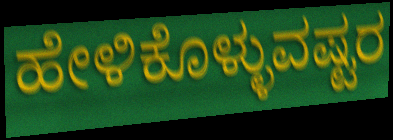
ಹೇಳಿಕೊಳ್ಳುವಷ್ಟರ